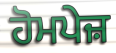
ਹੋਮਪੇਜ਼